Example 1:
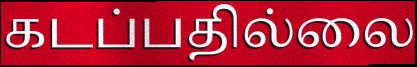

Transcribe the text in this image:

கடப்பதில்லை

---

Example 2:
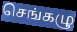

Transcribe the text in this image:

செங்கழு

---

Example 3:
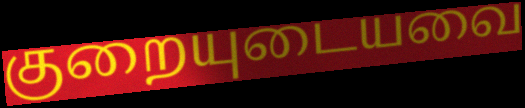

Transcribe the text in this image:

குறையுடையவை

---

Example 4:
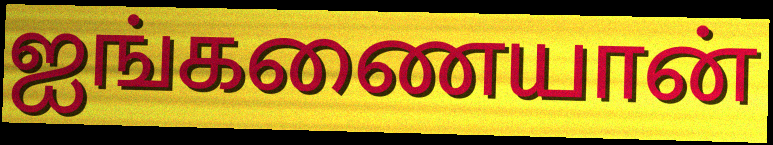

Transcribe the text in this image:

ஐங்கணையான்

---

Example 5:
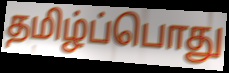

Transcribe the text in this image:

தமிழ்ப்பொது